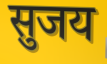
सुजय